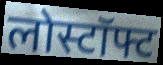
लोस्टॉफ्ट